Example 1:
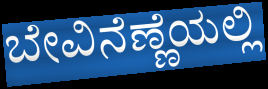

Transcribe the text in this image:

ಬೇವಿನೆಣ್ಣೆಯಲ್ಲಿ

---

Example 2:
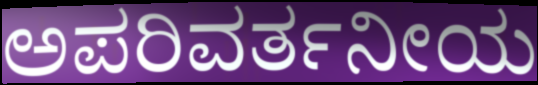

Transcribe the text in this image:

ಅಪರಿವರ್ತನೀಯ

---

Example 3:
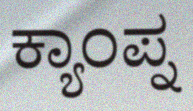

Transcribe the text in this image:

ಕ್ಯಾಂಪ್ನ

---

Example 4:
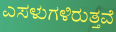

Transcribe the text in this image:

ಎಸಳುಗಳಿರುತ್ತವೆ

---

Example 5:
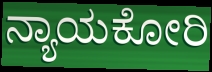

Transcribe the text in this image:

ನ್ಯಾಯಕೋರಿ